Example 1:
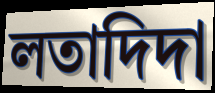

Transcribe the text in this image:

লতাদিদা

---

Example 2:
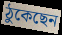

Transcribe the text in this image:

ঠুকেছেন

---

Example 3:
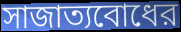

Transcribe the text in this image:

সাজাত্যবোধের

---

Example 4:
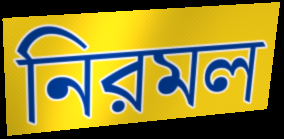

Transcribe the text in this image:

নিরমল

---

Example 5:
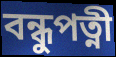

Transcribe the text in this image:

বন্ধুপত্নী